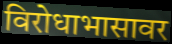
विरोधाभासावर